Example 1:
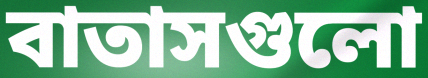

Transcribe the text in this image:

বাতাসগুলো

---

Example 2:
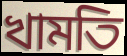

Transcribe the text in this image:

খামতি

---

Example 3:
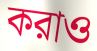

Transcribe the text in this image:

করাও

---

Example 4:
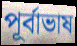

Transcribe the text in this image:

পূর্বাভাষ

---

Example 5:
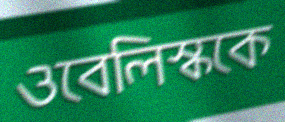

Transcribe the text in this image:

ওবেলিস্ককে